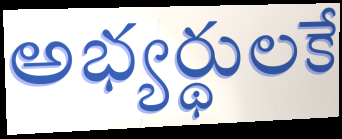
అభ్యర్థులకే